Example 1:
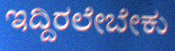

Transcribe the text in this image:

ಇದ್ದಿರಲೇಬೇಕು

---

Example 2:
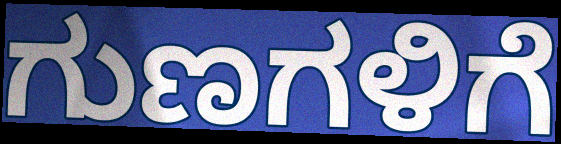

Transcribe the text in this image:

ಗುಣಗಳಿಗೆ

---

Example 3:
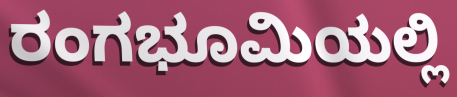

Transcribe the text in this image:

ರಂಗಭೂಮಿಯಲ್ಲಿ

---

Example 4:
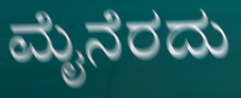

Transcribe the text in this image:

ಮೈನೆರದು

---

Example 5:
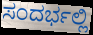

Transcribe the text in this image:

ಸಂದರ್ಭಲ್ಲಿ